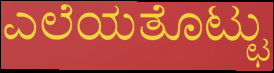
ಎಲೆಯತೊಟ್ಟು